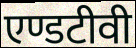
एण्डटीवी